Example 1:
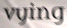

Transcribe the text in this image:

vying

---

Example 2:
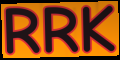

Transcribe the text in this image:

RRK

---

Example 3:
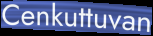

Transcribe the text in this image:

Cenkuttuvan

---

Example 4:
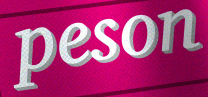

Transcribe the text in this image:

peson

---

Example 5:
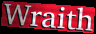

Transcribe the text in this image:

Wraith